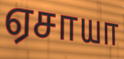
ஏசாயா